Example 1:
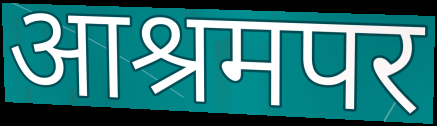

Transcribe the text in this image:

आश्रमपर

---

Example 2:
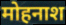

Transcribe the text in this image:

मोहनाश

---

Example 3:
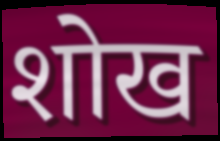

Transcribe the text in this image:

शोख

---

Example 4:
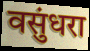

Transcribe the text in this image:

वसुंधरा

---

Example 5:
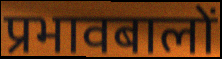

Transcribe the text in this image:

प्रभावबालों